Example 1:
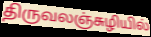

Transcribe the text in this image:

திருவலஞ்சுழியில்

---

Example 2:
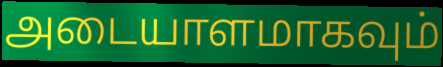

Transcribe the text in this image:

அடையாளமாகவும்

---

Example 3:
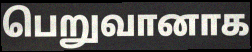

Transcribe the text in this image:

பெறுவானாக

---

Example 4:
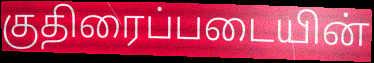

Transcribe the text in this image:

குதிரைப்படையின்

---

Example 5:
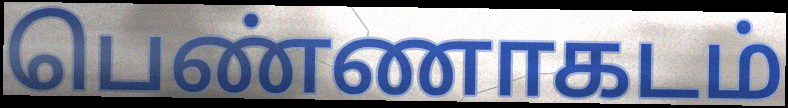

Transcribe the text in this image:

பெண்ணாகடம்